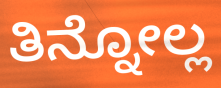
ತಿನ್ನೋಲ್ಲ